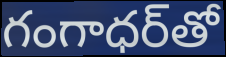
గంగాధర్‌తో